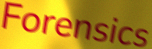
Forensics